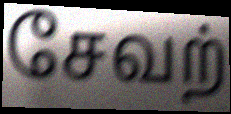
சேவற்